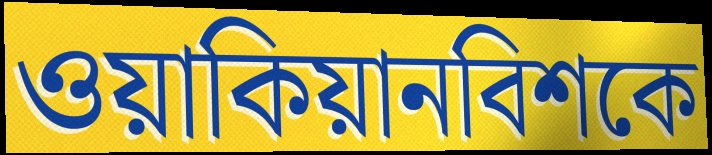
ওয়াকিয়ানবিশকে